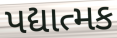
પદ્યાત્મક